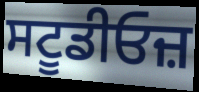
ਸਟੂਡੀਓਜ਼